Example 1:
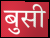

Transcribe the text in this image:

बुसी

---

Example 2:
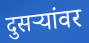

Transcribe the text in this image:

दुसर्‍यांवर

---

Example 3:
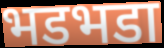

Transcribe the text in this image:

भडभडा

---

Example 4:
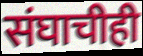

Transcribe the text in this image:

संघाचीही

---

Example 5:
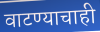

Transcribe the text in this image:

वाटण्याचाही